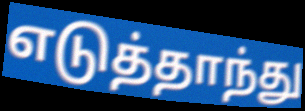
எடுத்தாந்து